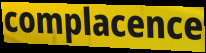
complacence